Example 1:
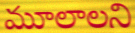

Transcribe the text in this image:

మూలాలని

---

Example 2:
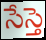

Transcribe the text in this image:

సేస్తె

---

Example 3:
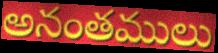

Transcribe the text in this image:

అనంతములు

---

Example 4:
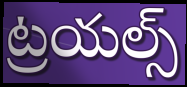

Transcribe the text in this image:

ట్రయల్స్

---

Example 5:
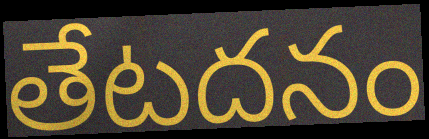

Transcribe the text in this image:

తేటదనం